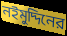
নইমুদ্দিনের